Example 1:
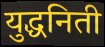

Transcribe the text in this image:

युद्धनिती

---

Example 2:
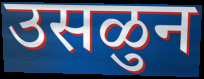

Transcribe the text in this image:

उसळुन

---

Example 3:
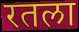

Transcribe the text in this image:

रतला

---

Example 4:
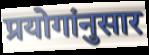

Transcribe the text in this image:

प्रयोगांनुसार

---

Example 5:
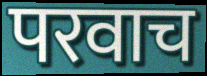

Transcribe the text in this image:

परवाच